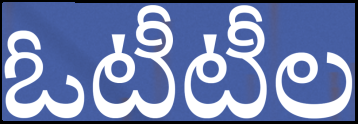
ఓటీటీల